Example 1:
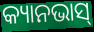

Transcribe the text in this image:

କ୍ୟାନଭାସ୍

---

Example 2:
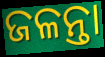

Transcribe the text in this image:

ଜଳନ୍ତା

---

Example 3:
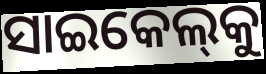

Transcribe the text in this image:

ସାଇକେଲ୍‌କୁ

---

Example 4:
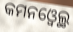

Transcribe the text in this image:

କମନଓ୍ବେଲ୍ଥ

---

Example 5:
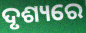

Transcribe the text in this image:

ଦୃଶ୍ୟରେ